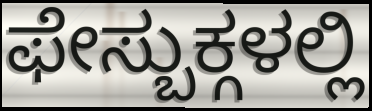
ಫೇಸ್ಬುಕ್ಗಳಲ್ಲಿ